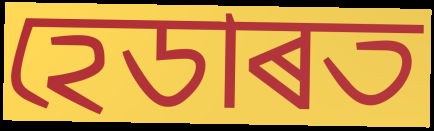
হেডাৰত